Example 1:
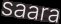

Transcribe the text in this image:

saara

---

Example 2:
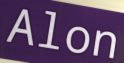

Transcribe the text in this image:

Alon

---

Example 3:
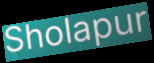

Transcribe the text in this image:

Sholapur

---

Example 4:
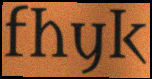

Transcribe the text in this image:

fhyk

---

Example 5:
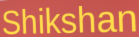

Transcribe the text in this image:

Shikshan